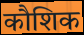
कौशिक